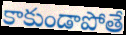
కాకుండాపోతే